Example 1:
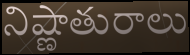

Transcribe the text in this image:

నిష్ణాతురాలు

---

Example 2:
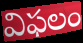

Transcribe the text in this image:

విఫలం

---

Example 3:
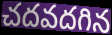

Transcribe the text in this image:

చదవదగిన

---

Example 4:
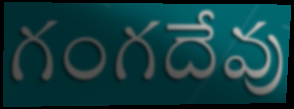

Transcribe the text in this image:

గంగదేవు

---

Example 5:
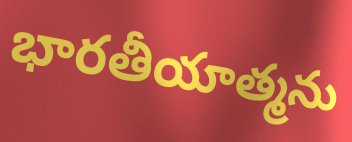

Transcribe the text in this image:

భారతీయాత్మను